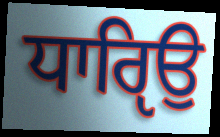
ਧਾਰੵਿਉ